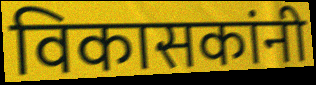
विकासकांनी